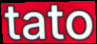
tato